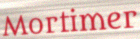
Mortimer